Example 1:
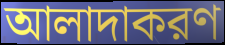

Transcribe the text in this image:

আলাদাকরণ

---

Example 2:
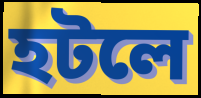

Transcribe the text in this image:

হটলে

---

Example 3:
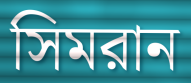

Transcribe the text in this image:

সিমরান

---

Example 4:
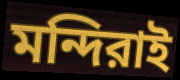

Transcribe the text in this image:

মন্দিরাই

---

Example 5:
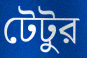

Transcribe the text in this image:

টেটুর